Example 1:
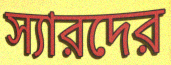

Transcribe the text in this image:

স্যারদের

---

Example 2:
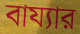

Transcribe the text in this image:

বায্যার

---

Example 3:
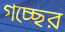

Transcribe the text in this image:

গচ্ছের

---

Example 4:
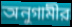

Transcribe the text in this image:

অনুগামীর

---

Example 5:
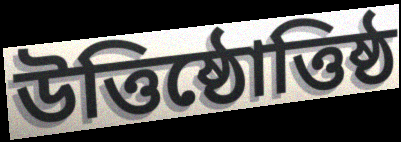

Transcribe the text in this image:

উত্তিষ্ঠোত্তিষ্ঠ